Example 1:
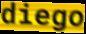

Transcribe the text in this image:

diego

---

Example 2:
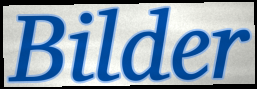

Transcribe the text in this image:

Bilder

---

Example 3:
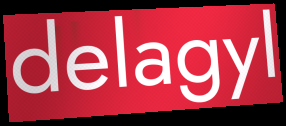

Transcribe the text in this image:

delagyl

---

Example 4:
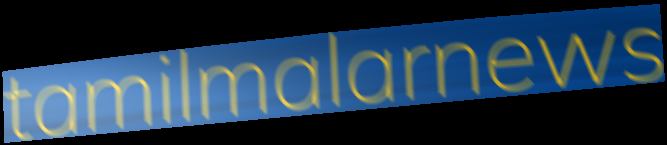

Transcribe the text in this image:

tamilmalarnews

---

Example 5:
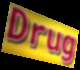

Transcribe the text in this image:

Drug